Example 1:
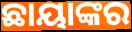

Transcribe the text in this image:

ଛାୟାଙ୍କର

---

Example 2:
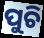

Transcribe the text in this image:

ପୁଚି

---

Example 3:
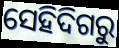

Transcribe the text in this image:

ସେହିଦିଗରୁ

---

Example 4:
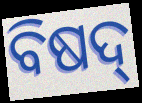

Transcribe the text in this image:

ବିଷଦ୍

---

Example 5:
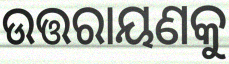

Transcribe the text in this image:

ଉତ୍ତରାୟଣକୁ